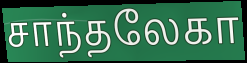
சாந்தலேகா